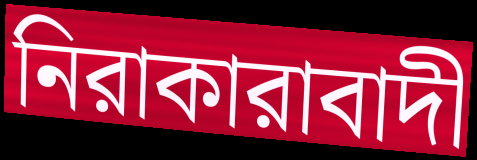
নিরাকারাবাদী